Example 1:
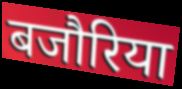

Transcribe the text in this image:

बजौरिया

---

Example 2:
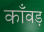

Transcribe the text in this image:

काँवड़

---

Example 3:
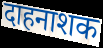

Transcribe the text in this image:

दाहनाशक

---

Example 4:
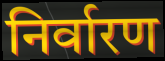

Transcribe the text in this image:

निर्वारण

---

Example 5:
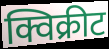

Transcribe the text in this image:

क्विक्रीट